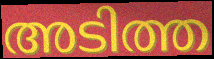
അടിത്ത